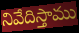
నివేదిస్తాము